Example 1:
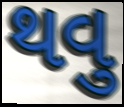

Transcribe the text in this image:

થવુ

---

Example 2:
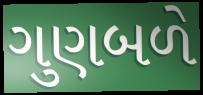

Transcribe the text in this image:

ગુણબળે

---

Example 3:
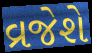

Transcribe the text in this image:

વ્રજેશે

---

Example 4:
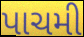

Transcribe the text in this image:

પાચમી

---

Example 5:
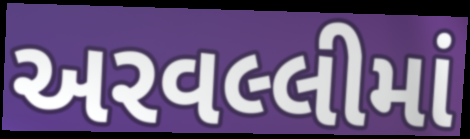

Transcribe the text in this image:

અરવલ્લીમાં